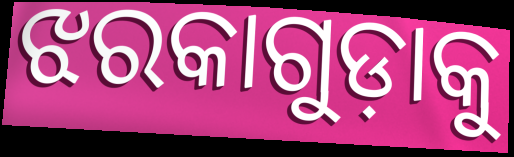
ଝରକାଗୁଡ଼ାକୁ